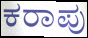
ಕರಾಪು